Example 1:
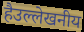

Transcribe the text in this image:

हैउल्लेखनीय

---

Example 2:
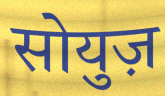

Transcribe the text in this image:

सोयुज़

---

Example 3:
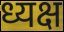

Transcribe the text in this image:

ध्यक्ष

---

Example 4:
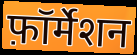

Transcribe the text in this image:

फ़ॉर्मेशन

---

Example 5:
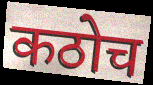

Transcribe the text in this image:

कठोच